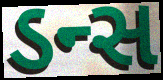
ડન્સ